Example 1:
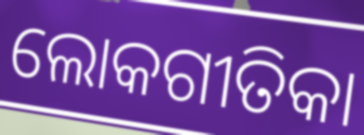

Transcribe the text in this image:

ଲୋକଗୀତିକା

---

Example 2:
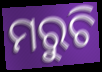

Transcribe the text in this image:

ମରୁଚି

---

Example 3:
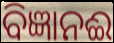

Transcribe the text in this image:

ବିଜ୍ଞାନଈ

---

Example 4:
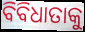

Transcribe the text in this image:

ବିବିଧାତାକୁ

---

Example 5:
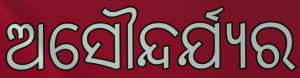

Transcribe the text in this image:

ଅସୌନ୍ଦର୍ଯ୍ୟର